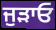
ਜੁੜਾਓ